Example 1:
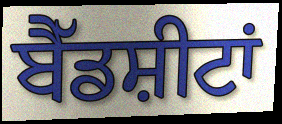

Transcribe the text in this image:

ਬੈੱਡਸ਼ੀਟਾਂ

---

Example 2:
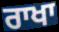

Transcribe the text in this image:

ਰਾਖਾ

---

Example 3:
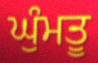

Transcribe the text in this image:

ਘੁੰਮਤੂ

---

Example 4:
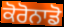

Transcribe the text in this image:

ਕੋਰੋਨਾਡੋ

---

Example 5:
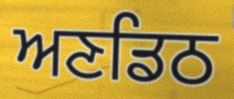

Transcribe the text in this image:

ਅਣਡਿਠ